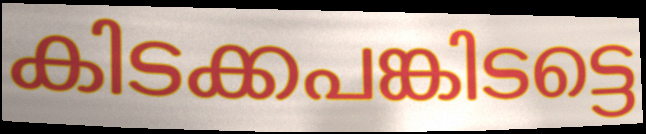
കിടക്കപങ്കിടട്ടെ